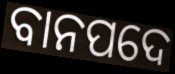
ବାନପଦେ